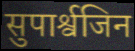
सुपार्श्वजिन